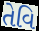
તેવિ